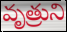
వృత్రుని